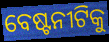
ବେଷ୍ଟନୀଟିକୁ